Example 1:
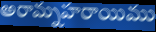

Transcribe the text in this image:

అరామ్నహరాయిము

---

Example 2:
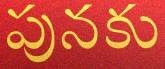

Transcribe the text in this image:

పునకు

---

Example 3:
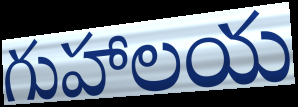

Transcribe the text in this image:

గుహాలయ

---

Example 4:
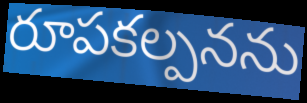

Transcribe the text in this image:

రూపకల్పనను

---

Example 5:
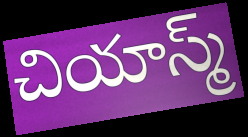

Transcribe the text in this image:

చియాస్మ్